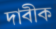
দাবীক